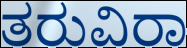
ತರುವಿರಾ